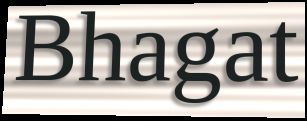
Bhagat